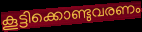
കൂട്ടിക്കൊണ്ടുവരണം